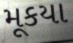
મૂકયા